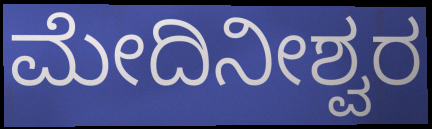
ಮೇದಿನೀಶ್ವರ